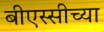
बीएस्सीच्या